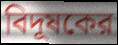
বিদূষকের